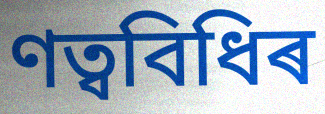
ণত্ববিধিৰ